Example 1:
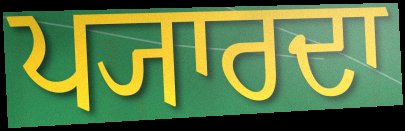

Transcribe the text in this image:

ਪ੍ਯਾਰਦਾ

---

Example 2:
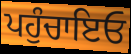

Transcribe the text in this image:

ਪਹੁੰਚਾਇਓ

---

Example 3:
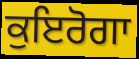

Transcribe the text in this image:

ਕੁਇਰੋਗਾ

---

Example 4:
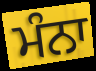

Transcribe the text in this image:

ਮੰਨਾ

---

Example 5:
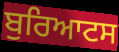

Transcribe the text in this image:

ਬੁਰਿਆਟਸ